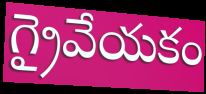
గ్రైవేయకం